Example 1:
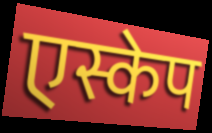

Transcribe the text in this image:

एस्केप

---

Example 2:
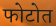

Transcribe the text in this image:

फोटोत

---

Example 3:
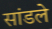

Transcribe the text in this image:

सांडले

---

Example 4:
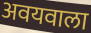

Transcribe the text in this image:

अवयवाला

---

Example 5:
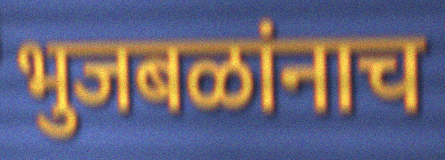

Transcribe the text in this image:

भुजबळांनाच